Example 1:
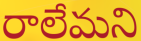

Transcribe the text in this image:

రాలేమని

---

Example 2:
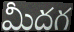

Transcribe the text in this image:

మీదగ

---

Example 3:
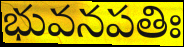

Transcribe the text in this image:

భువనపతిః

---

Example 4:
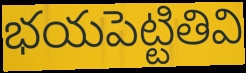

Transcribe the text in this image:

భయపెట్టితివి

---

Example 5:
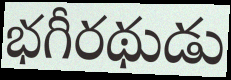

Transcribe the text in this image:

భగీరథుడు